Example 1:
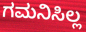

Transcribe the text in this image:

ಗಮನಿಸಿಲ್ಲ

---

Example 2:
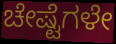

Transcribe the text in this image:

ಚೇಷ್ಟೆಗಳೇ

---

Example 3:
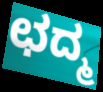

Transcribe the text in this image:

ಛದ್ಮ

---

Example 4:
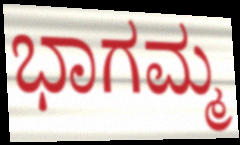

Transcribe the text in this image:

ಭಾಗಮ್ಮ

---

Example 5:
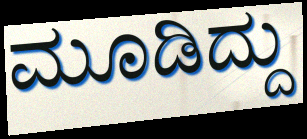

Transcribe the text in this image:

ಮೂಡಿದ್ದು